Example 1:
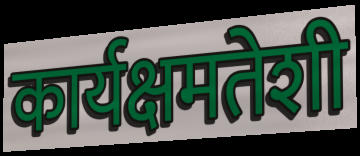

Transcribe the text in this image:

कार्यक्षमतेशी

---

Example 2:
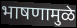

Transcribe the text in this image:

भाषणामुळे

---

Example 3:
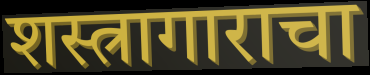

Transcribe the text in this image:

शस्त्रागाराचा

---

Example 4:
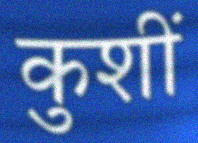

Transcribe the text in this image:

कुशीं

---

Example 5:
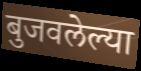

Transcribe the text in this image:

बुजवलेल्या